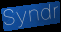
Syndr